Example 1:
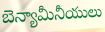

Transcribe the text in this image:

బెన్యామీనీయులు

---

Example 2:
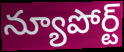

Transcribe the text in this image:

న్యూపోర్ట్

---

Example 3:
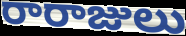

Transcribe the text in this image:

రారాజులు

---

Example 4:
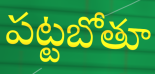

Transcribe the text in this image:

పట్టబోతూ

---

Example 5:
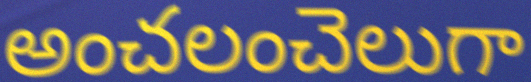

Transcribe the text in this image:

అంచలంచెలుగా